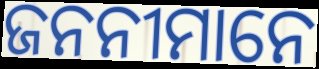
ଜନନୀମାନେ